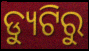
ଡ୍ୟୁଟିରୁ